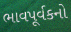
ભાવપૂર્વકનો